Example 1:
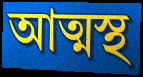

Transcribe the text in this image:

আত্মস্থ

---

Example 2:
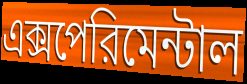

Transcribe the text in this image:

এক্সপেরিমেন্টাল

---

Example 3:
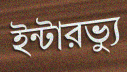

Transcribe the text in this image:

ইন্টারভ্যু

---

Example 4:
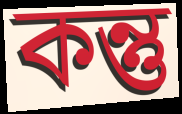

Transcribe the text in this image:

কন্তু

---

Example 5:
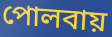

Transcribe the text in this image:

পোলবায়